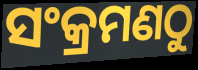
ସଂକ୍ରମଣଠୁ